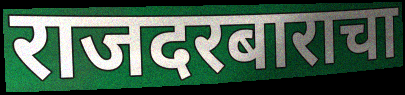
राजदरबाराचा